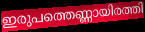
ഇരുപത്തെണ്ണായിരത്തി